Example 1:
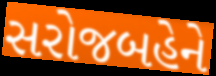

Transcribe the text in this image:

સરોજબહેને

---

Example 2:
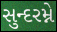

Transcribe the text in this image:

સુન્દરમ્ને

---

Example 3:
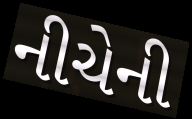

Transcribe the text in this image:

નીચેની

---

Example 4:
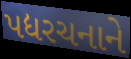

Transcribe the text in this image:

પદ્યરચનાને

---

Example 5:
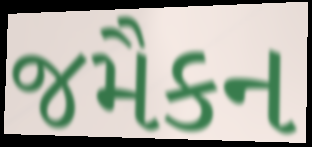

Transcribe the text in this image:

જમૈકન